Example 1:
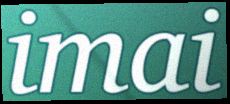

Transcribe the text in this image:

imai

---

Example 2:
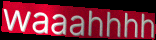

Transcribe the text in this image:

waaahhhh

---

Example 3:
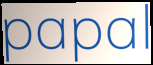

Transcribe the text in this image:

papal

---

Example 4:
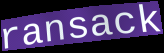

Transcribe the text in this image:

ransack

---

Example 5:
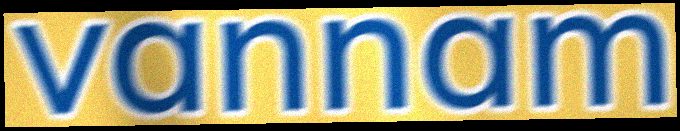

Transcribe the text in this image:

vannam